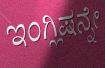
ಇಂಗ್ಲಿಷನ್ನೇ